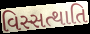
વિસ્સત્થાતિ